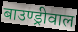
बाउण्ड्रीवाल